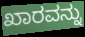
ಖಾರವನ್ನು